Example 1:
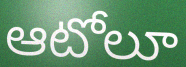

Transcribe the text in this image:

ఆటోలూ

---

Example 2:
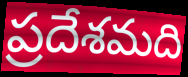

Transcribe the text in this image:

ప్రదేశమది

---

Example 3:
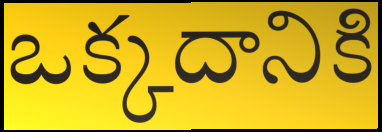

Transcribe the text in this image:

ఒక్కదానికి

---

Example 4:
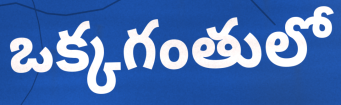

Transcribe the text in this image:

ఒక్కగంతులో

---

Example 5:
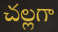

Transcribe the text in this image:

చల్లగా